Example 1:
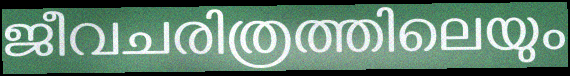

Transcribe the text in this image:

ജീവചരിത്രത്തിലെയും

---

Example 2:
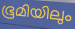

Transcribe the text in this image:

ഭൂമിയിലും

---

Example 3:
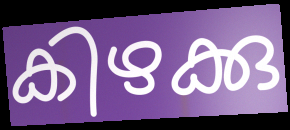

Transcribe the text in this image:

കിഴക്കു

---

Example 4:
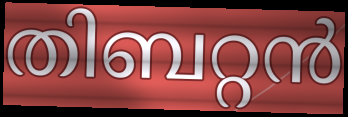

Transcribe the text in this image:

തിബറ്റൻ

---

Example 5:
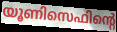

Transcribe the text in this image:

യൂണിസെഫിന്റെ